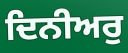
ਦਿਨੀਅਰੁ